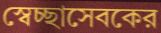
স্বেচ্ছাসেবকের